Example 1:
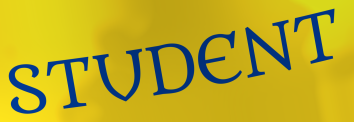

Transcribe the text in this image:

STUDENT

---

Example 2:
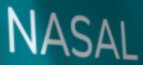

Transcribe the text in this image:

NASAL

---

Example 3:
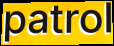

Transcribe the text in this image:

patrol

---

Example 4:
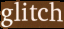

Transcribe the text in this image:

glitch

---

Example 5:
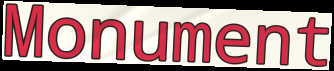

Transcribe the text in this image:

Monument